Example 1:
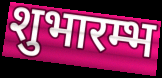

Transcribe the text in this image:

शुभारम्भ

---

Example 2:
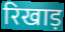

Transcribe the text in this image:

रिखाड़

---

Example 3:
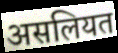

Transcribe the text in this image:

असलियत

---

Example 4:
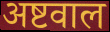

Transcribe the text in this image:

अष्टवाल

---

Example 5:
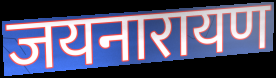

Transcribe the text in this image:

जयनारायण